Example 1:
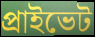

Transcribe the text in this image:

প্ৰাইভেট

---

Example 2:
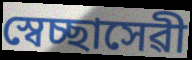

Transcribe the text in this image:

স্বেচ্ছাসেৱী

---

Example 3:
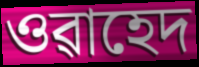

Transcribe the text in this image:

ওৱাহেদ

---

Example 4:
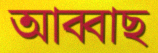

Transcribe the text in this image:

আব্বাছ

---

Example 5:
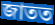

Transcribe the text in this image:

জাতত